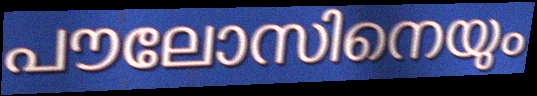
പൗലോസിനെയും